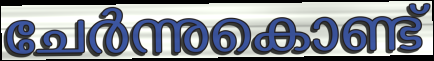
ചേർന്നുകൊണ്ട്